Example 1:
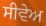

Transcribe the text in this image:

ਸੀਵੇਅ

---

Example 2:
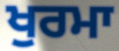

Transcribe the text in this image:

ਖੁਰਮਾ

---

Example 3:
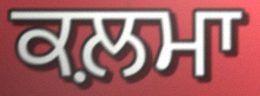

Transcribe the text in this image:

ਕਲ਼ਮਾ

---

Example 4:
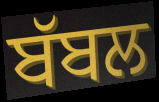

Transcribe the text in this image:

ਬੱਬਲ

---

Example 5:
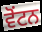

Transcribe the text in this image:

ਵੋਂਟਨ